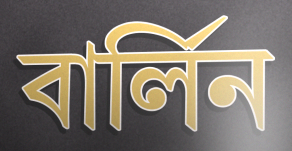
বাৰ্লিন